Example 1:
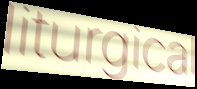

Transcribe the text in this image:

liturgical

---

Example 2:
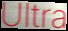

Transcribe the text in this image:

Ultra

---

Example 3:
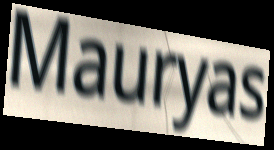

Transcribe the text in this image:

Mauryas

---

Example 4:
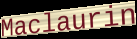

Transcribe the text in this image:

Maclaurin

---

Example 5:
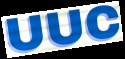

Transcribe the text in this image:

UUC